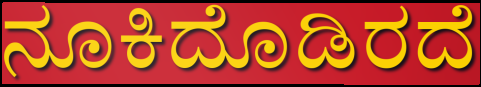
ನೂಕಿದೊಡಿರದೆ